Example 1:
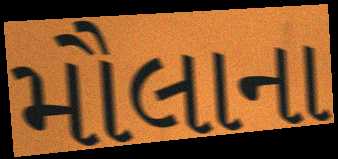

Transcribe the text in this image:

મૌલાના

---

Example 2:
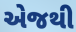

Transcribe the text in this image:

એજથી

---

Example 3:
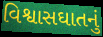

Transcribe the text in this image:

વિશ્વાસઘાતનું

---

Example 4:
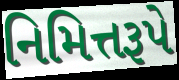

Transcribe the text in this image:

નિમિત્તરૂપે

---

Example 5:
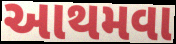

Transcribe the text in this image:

આથમવા